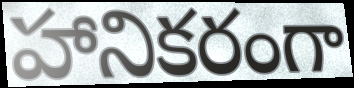
హానికరంగా